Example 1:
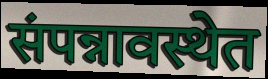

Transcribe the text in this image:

संपन्नावस्थेत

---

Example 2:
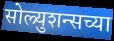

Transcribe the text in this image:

सोल्युशन्सच्या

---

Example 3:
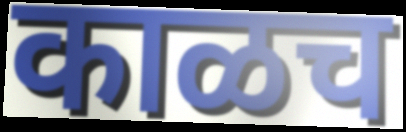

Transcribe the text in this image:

काळच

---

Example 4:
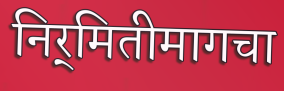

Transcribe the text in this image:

निर्मितीमागचा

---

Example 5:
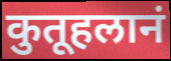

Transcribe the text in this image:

कुतूहलानं